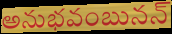
అనుభవంబునన్